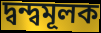
দ্বন্দ্বমূলক